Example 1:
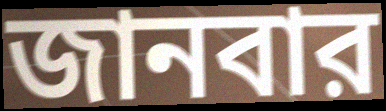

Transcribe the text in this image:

জানবার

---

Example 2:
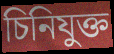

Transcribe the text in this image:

চিনিযুক্ত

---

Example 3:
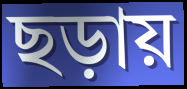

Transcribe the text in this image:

ছড়ায়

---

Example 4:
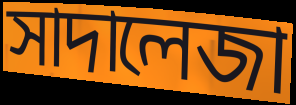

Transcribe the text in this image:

সাদালেজা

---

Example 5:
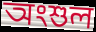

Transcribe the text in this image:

অংশুল